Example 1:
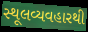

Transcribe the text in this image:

સ્થૂલવ્યવહારથી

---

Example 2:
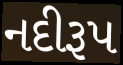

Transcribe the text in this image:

નદીરૂપ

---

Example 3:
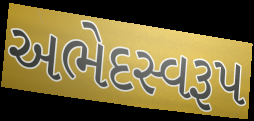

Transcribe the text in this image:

અભેદસ્વરૂપ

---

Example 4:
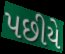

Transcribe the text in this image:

પછીયે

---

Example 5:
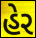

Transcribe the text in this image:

હેર